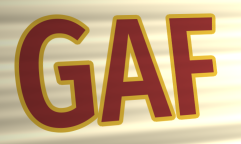
GAF